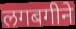
लगबगीने